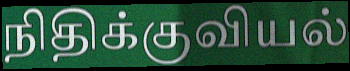
நிதிக்குவியல்